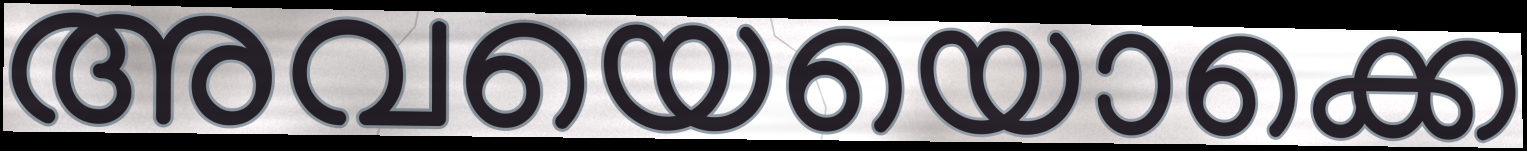
അവയെയൊക്കെ